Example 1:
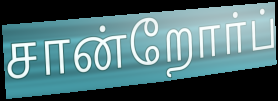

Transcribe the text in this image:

சான்றோர்ப்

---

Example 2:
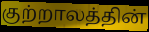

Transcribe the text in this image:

குற்றாலத்தின்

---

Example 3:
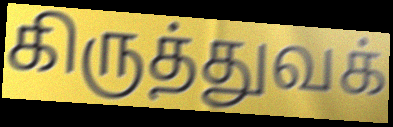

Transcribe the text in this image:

கிருத்துவக்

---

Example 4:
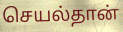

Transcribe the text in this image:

செயல்தான்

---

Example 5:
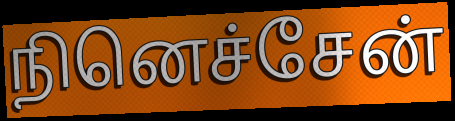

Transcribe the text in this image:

நினெச்சேன்